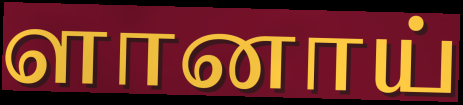
ளானாய்